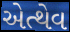
એત્થેવ